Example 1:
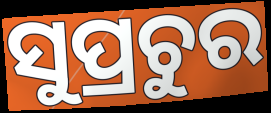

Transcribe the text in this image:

ସୁପ୍ରଚୁର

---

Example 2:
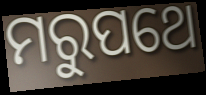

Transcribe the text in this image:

ମରୁପଥେ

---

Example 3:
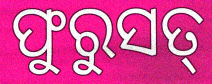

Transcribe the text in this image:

ଫୁରୁସତ୍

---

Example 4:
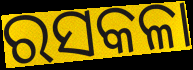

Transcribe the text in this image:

ରସକଳା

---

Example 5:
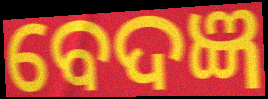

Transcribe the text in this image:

ବେଦଜ୍ଞ